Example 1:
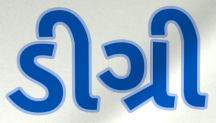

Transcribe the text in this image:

ડીગ્રી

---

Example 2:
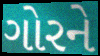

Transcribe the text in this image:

ગોરને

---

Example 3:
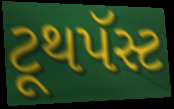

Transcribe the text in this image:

ટૂથપૅસ્ટ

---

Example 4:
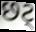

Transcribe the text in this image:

છટ્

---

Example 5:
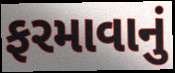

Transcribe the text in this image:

ફરમાવાનું